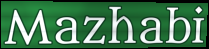
Mazhabi